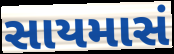
સાયમાસં